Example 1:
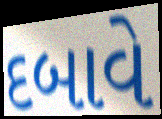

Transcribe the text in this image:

દબાવે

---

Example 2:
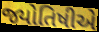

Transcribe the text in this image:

જ્યોતિષીએ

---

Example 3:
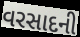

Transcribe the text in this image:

વરસાદની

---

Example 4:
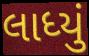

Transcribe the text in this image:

લાધ્યું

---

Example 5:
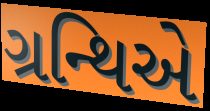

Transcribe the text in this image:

ગ્રન્થિએ